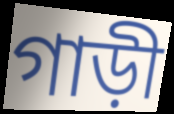
গাড়ী